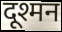
दूश्मन